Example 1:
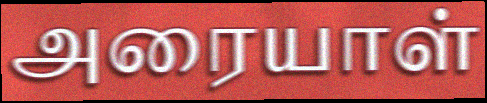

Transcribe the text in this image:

அரையாள்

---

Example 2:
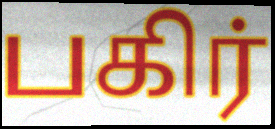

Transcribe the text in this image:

பகிர்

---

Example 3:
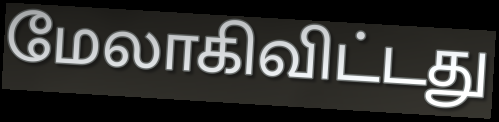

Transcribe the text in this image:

மேலாகிவிட்டது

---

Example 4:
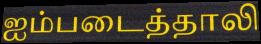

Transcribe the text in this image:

ஐம்படைத்தாலி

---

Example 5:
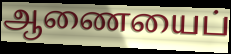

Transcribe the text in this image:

ஆணையைப்